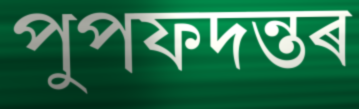
পুপফদন্তৰ